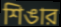
শিঙার